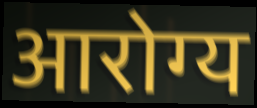
आरोग्य